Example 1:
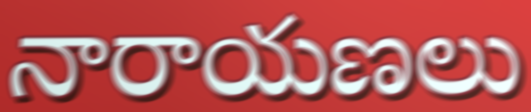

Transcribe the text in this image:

నారాయణలు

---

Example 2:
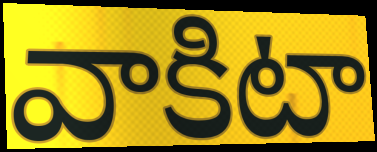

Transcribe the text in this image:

వాకిటా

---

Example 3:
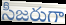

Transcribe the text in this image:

సీజరుగా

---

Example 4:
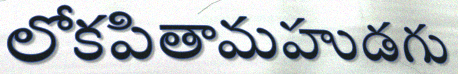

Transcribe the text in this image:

లోకపితామహుడగు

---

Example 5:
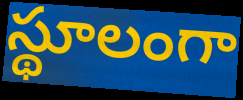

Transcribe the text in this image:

స్థూలంగా